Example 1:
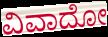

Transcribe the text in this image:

ವಿವಾದೋ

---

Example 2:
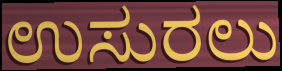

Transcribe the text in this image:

ಉಸುರಲು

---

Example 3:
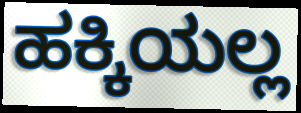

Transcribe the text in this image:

ಹಕ್ಕಿಯಲ್ಲ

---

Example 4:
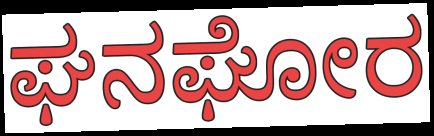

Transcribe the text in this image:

ಘನಘೋರ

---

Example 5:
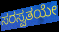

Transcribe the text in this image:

ಸರಸ್ವತಯೇ